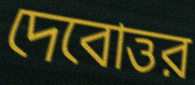
দেবোত্তর